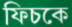
ফিচকে